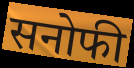
सनोफी